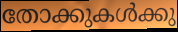
തോക്കുകൾക്കു